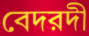
বেদরদী